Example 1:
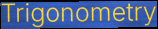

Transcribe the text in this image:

Trigonometry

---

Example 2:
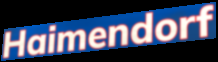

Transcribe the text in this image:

Haimendorf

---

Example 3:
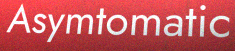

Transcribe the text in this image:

Asymtomatic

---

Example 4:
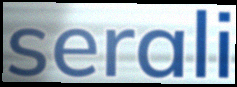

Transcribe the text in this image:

serali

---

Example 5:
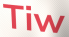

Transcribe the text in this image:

Tiw